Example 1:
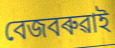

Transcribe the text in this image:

বেজবৰুৱাই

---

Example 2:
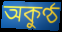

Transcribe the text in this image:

অকুণ্ঠ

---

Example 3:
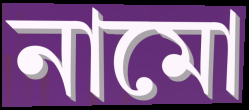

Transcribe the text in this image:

নামো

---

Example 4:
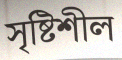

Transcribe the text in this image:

সৃষ্টিশীল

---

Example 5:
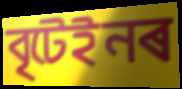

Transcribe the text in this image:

বৃটেইনৰ